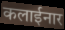
कलाईनार